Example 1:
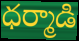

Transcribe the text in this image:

ధర్మాడి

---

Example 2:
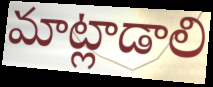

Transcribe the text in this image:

మాట్లాడాలి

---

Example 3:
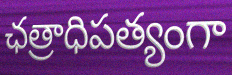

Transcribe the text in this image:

ఛత్రాధిపత్యంగా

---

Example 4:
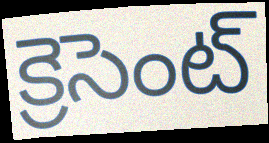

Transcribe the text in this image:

క్రెసెంట్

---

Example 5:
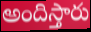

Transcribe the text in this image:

అందిస్తారు